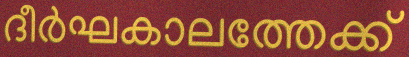
ദീർഘകാലത്തേക്ക്